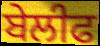
ਬੇਲੀਫ